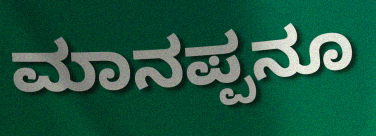
ಮಾನಪ್ಪನೂ